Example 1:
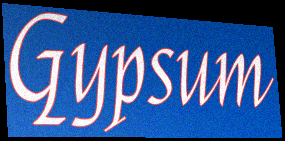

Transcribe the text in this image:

Gypsum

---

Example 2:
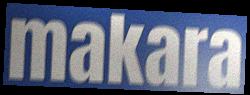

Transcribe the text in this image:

makara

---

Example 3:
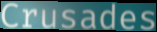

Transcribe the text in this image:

Crusades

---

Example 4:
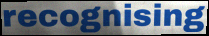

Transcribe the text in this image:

recognising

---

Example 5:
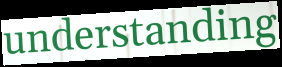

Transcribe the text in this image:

understanding